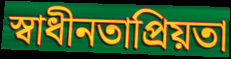
স্বাধীনতাপ্রিয়তা